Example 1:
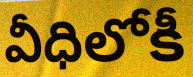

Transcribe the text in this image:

వీధిలోకీ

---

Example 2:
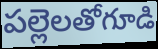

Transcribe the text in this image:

పల్లెలతోగూడి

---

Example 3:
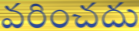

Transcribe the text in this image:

వరించదు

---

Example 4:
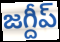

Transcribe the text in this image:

జగ్దీప్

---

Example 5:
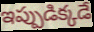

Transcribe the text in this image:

ఇప్పుడిక్కడే